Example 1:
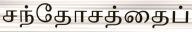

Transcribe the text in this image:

சந்தோசத்தைப்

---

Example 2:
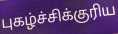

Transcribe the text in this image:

புகழ்ச்சிக்குரிய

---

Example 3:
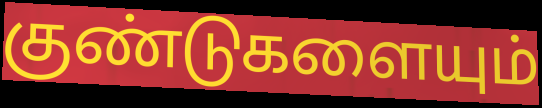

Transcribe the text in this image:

குண்டுகளையும்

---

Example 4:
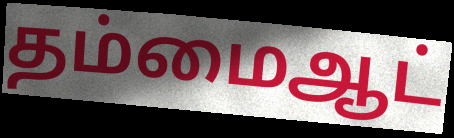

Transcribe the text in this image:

தம்மைஆட்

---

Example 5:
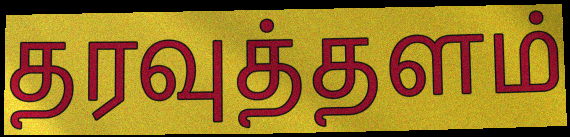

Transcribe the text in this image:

தரவுத்தளம்